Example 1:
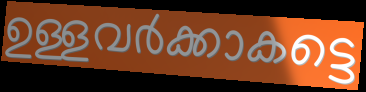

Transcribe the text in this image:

ഉള്ളവർക്കാകട്ടെ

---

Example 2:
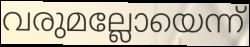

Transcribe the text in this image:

വരുമല്ലോയെന്ന്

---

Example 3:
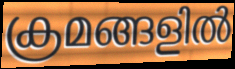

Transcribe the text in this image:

ക്രമങ്ങളിൽ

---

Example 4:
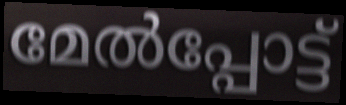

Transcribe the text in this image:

മേൽപ്പോട്ട്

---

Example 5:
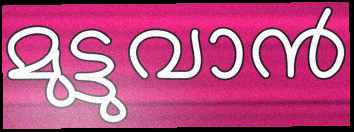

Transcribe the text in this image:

മുട്ടുവാൻ